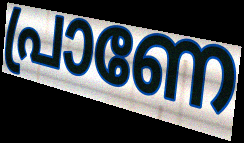
പ്രാണേ